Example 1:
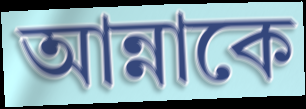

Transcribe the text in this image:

আন্নাকে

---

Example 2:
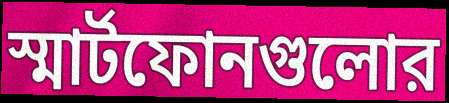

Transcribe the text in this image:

স্মার্টফোনগুলোর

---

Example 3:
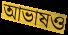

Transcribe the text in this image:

আভাষও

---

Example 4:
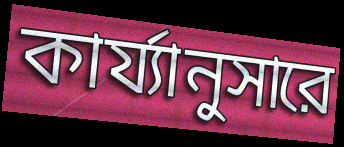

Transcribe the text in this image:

কার্য্যানুসারে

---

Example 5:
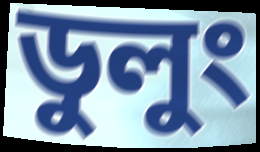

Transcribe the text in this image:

ডুলুং